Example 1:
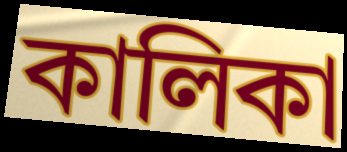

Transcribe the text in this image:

কালিকা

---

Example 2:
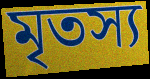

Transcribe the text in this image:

মৃতস্য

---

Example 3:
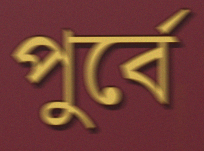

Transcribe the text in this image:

পুর্বে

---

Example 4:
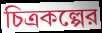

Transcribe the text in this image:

চিত্রকল্পের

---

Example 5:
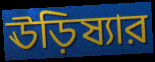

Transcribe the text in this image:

ঊড়িষ্যার